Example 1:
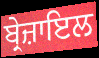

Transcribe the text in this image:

ਬ੍ਰੇਜ਼ਾਇਲ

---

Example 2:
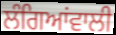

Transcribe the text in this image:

ਲੰਗਿਆਂਵਾਲੀ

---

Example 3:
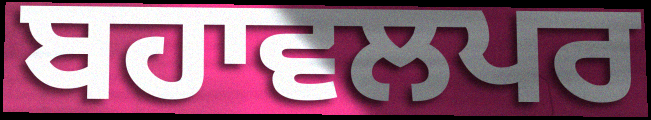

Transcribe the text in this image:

ਬਹਾਵਲਪਰ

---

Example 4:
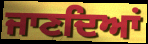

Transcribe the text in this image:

ਜਾਣਦਿਆਂ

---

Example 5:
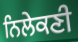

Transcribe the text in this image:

ਨਿਲੇਕਣੀ